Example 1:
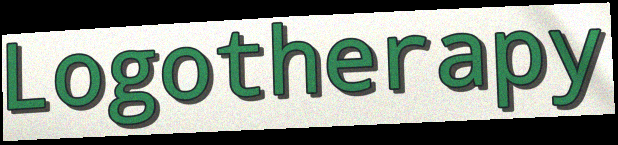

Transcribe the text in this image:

Logotherapy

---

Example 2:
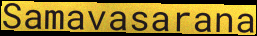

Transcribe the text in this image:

Samavasarana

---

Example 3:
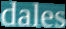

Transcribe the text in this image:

dales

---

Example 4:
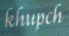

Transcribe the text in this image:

khupch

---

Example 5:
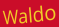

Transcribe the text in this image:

Waldo